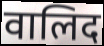
वालिद